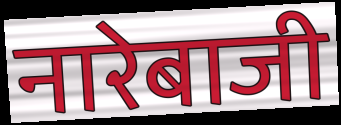
नारेबाजी